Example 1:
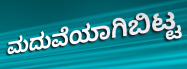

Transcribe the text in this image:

ಮದುವೆಯಾಗಿಬಿಟ್ಟ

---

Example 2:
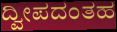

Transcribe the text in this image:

ದ್ವೀಪದಂತಹ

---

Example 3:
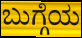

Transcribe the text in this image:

ಬುಗ್ಗೆಯ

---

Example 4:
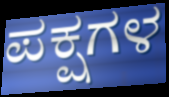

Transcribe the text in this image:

ಪಕ್ಷಗಳ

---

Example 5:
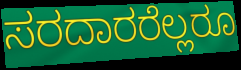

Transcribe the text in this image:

ಸರದಾರರೆಲ್ಲರೂ